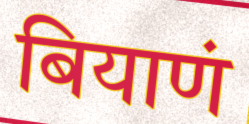
बियाणं